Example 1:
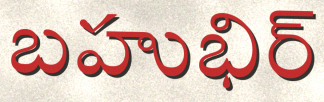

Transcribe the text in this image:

బహుభిర్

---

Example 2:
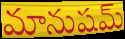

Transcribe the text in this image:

మానుషమ్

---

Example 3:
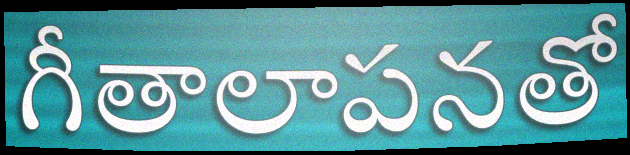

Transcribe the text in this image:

గీతాలాపనతో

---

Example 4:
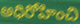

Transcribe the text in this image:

అధిరోహించి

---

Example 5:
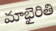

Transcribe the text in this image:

మాభైరితి